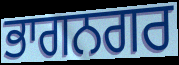
ਭਾਗਨਗਰ